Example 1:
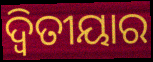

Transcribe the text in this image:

ଦ୍ଵିତୀୟାର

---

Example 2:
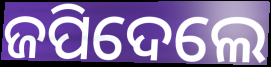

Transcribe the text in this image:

ଜପିଦେଲେ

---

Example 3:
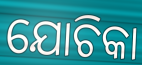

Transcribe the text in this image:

ଯୋଚିକା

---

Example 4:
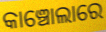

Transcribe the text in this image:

କାଞ୍ଚୋଲାରେ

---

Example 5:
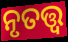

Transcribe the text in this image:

ନୃତତ୍ତ୍ଵ